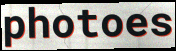
photoes